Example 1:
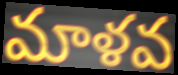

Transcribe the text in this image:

మాళవ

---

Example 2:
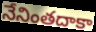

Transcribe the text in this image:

నేనింతదాకా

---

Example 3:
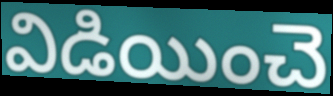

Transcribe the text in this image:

విడియించె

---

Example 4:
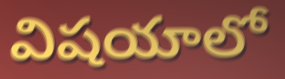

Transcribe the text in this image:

విషయాలో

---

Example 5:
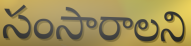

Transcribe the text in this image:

సంసారాలని